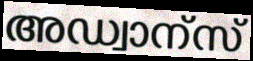
അഡ്വാന്സ്